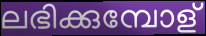
ലഭിക്കുമ്പോള്